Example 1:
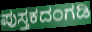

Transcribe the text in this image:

ಪುಸ್ತಕದಂಗಡಿ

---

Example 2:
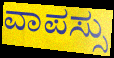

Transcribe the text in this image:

ವಾಪಸ್ಸು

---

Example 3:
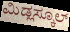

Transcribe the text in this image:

ಮಿಡ್ಲಸ್ಕೂಲ್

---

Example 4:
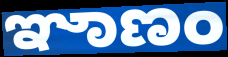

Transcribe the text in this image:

ಞಾಣಂ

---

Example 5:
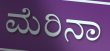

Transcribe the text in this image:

ಮೆರಿನಾ